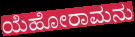
ಯೆಹೋರಾಮನು